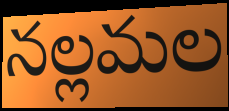
నల్లమల